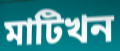
মাটিখন